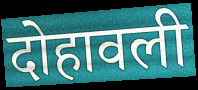
दोहावली